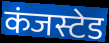
कंजस्टेड